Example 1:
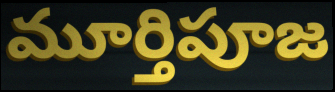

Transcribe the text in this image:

మూర్తిపూజ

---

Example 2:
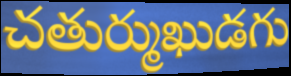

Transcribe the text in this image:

చతుర్ముఖుడగు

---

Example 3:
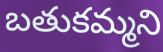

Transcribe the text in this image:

బతుకమ్మని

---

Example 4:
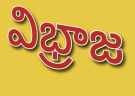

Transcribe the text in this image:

విభ్రాజ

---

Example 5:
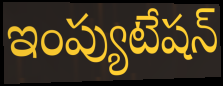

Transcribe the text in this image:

ఇంప్యుటేషన్